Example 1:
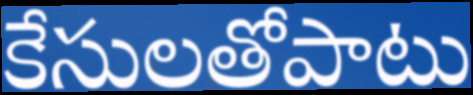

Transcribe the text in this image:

కేసులతోపాటు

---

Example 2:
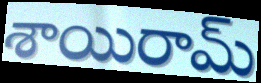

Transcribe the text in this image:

శాయిరామ్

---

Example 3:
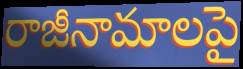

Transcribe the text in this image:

రాజీనామాలపై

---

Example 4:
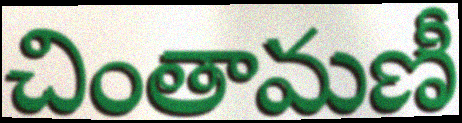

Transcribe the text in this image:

చింతామణీ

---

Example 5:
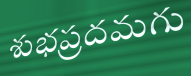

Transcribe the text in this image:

శుభప్రదమగు